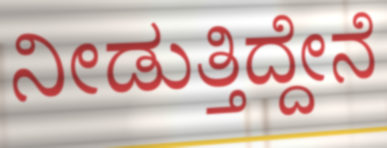
ನೀಡುತ್ತಿದ್ದೇನೆ